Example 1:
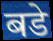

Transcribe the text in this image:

बडे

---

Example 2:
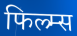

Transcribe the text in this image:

फिल्म्स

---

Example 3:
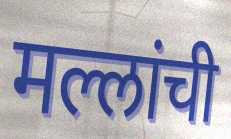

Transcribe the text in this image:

मल्लांची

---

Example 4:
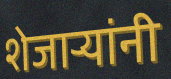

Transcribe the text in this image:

शेजाऱ्यांनी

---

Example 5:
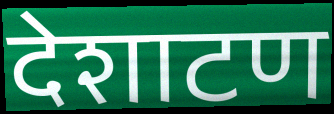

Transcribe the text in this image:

देशाटण